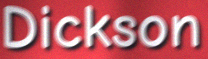
Dickson